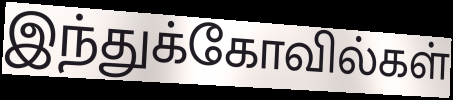
இந்துக்கோவில்கள்